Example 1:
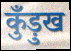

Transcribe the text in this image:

कुँड़ुख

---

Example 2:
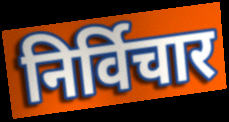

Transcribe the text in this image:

निर्विचार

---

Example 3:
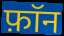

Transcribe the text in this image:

फ़ॉन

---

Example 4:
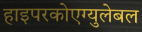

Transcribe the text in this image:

हाइपरकोएग्युलेबल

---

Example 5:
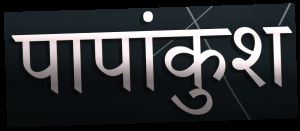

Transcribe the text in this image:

पापांकुश